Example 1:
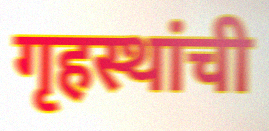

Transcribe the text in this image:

गृहस्थांची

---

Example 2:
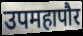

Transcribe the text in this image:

उपमहापौर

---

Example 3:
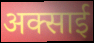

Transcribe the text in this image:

अक्साई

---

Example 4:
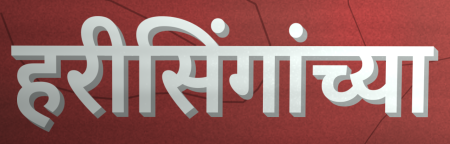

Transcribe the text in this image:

हरीसिंगांच्या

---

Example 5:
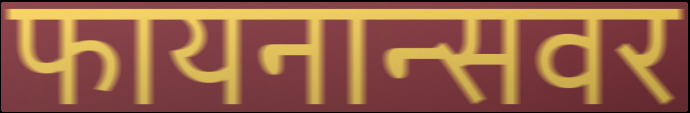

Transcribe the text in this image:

फायनान्सवर